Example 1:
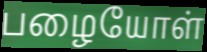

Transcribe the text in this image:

பழையோள்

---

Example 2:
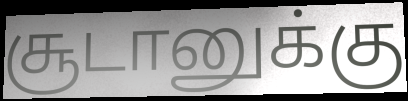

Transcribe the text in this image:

சூடானுக்கு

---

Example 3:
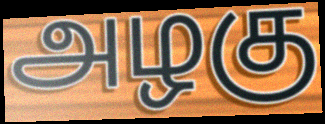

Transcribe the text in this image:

அழகு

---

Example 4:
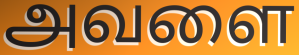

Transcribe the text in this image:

அவளை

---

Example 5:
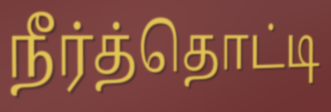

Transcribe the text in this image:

நீர்த்தொட்டி